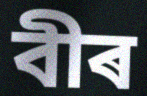
বীৰ